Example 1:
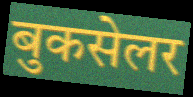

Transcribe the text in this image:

बुकसेलर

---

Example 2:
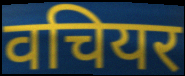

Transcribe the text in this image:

वचियर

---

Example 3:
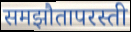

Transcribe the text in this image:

समझौतापरस्ती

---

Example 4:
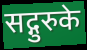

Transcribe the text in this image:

सद्गुरुके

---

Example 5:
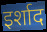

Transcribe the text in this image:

इर्शाद